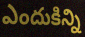
ఎందుకిన్ని